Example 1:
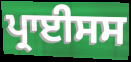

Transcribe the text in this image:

ਪ੍ਰਾਈਸਸ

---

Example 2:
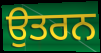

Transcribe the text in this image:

ਉਤਰਨ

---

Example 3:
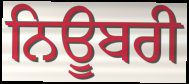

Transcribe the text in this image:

ਨਿਊਬਰੀ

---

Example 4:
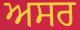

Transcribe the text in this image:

ਅਸਰ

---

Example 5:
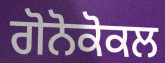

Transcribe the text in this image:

ਗੋਨੋਕੋਕਲ